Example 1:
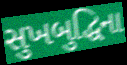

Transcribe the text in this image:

સુખબુદ્ધિના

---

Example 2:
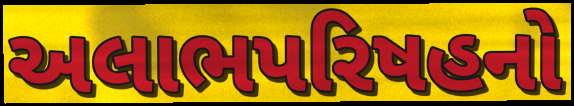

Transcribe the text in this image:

અલાભપરિષહનો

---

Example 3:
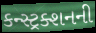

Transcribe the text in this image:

કન્સ્ટ્રક્શનની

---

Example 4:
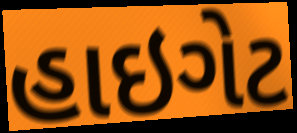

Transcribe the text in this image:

હાઇગેટ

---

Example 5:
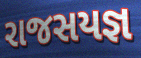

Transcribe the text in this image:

રાજસયજ્ઞ